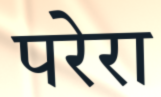
परेरा